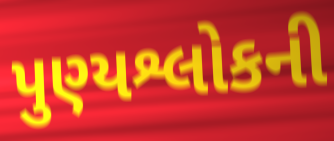
પુણ્યશ્લોકની